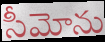
సీమోను